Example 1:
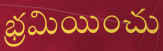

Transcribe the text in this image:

భ్రమియించు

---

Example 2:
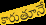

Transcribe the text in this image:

కారుతూనే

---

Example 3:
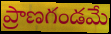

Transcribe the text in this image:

ప్రాణగండమే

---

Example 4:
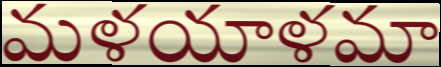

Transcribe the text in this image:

మళయాళమా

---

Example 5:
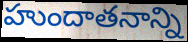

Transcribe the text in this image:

హుందాతనాన్ని